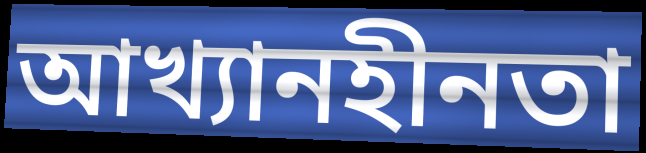
আখ্যানহীনতা